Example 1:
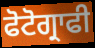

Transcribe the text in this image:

ਫੋਟੋਗ੍ਰਾਫੀ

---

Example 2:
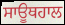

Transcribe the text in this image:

ਸਾਊਥਹਾਲ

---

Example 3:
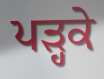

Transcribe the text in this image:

ਪੜ੍ਹਕੇ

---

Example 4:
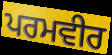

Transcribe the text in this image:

ਪਰਮਵੀਰ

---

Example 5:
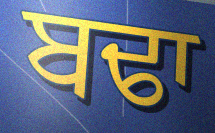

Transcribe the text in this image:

ਬਢਾ